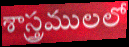
శాస్త్రములలో